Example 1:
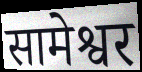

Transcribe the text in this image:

सामेश्वर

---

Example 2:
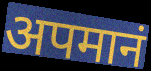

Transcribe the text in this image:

अपमानं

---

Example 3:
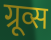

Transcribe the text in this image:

ग्रूव्स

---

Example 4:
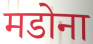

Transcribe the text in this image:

मडोना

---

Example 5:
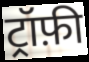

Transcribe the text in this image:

ट्रॉफ़ी